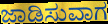
ಜಾಡಿಸುವಾಗ